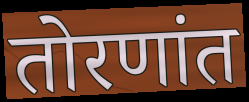
तोरणांत